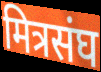
मित्रसंघ